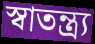
স্বাতন্ত্র্য